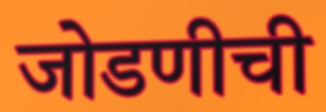
जोडणीची